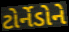
ટોર્નેડોને